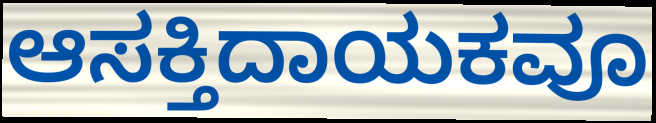
ಆಸಕ್ತಿದಾಯಕವೂ